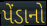
પેંડાનો